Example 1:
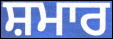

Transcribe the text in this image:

ਸ਼ਮਾਰ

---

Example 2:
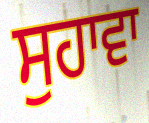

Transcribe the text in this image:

ਸੁਹਾਵਾ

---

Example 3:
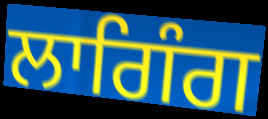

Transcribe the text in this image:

ਲਾਗਿੰਗ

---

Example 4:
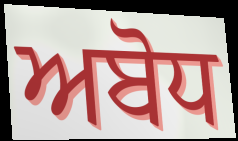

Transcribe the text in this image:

ਅਬੋਧ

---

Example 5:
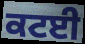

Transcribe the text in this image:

ਕਟਈ